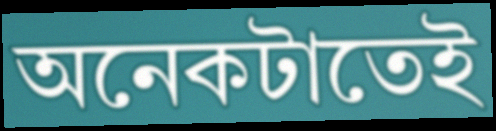
অনেকটাতেই